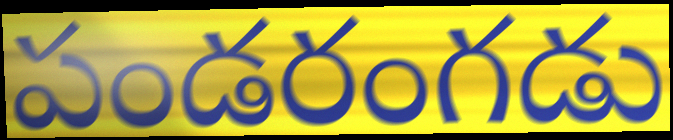
పండరంగడు